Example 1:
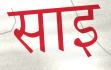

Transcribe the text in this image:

साइ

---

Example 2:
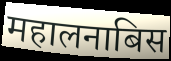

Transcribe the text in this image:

महालनाबिस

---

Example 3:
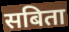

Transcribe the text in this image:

सबिता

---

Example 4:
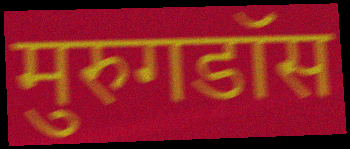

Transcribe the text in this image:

मुरुगडॉस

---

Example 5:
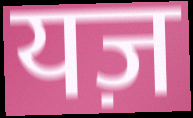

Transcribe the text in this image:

यज़